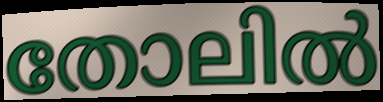
തോലിൽ